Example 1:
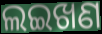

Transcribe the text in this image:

ଲଇଖଣ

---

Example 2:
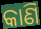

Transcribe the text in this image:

କାଣି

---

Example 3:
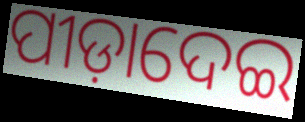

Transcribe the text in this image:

ପୀଡ଼ାଦେଇ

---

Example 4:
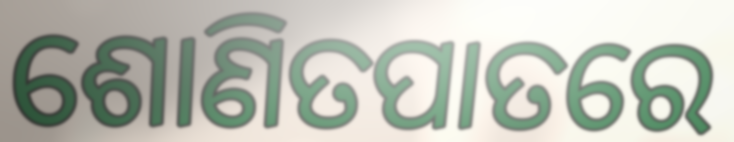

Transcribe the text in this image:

ଶୋଣିତପାତରେ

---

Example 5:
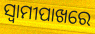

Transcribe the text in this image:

ସ୍ୱାମୀପାଖରେ